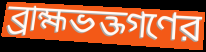
ব্রাহ্মভক্তগণের